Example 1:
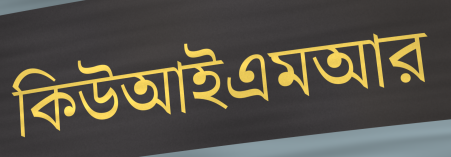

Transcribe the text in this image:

কিউআইএমআর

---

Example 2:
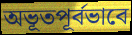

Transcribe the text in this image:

অভূতপূর্বভাবে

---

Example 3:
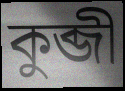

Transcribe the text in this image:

কুব্জী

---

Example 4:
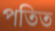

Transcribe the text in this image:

পতিত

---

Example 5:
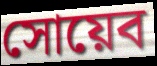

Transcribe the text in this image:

সোয়েব